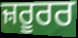
ਜ਼ਰੂਰਰ